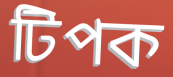
টিপক